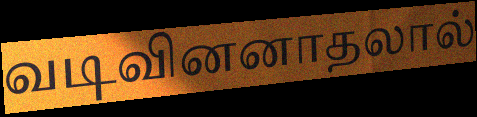
வடிவினனாதலால்